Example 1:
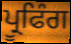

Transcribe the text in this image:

ਪ੍ਰੂਫਿੰਗ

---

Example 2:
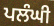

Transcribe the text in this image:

ਪਲੰਘੀ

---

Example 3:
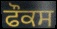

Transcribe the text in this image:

ਫੌਕਸ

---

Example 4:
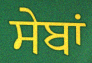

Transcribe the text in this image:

ਸੇਬਾਂ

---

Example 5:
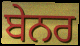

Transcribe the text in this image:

ਬੇਨਰ